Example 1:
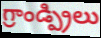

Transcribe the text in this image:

గ్రాండ్ప్రిలు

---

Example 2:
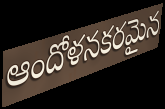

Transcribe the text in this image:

ఆందోళనకరమైన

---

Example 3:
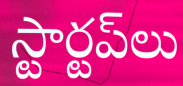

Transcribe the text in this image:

స్టార్టప్‌లు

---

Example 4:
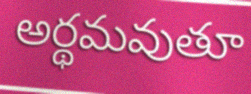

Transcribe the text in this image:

అర్థమవుతూ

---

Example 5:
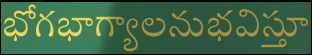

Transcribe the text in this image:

భోగభాగ్యాలనుభవిస్తూ